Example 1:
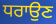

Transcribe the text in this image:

ਧਰਾਉਣ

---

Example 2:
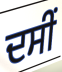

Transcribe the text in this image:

ਦਸੀਂ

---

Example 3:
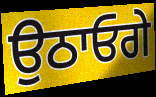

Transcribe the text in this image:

ਉਠਾਓਗੇ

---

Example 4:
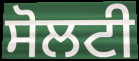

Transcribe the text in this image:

ਸੋਲਟੀ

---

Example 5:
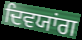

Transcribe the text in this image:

ਦਿਵਯਾਂਗ